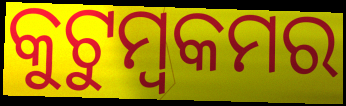
କୁଟୁମ୍ବକମର